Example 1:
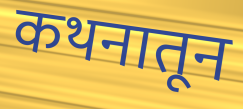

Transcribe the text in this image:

कथनातून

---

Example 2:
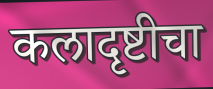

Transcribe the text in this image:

कलादृष्टीचा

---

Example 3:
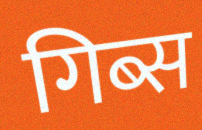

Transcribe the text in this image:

गिब्स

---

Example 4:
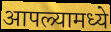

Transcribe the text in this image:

आपल्यामध्ये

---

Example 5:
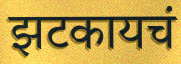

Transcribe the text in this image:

झटकायचं